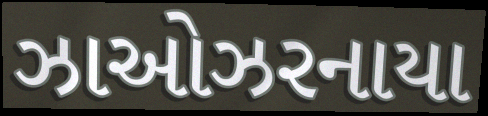
ઝાઓઝરનાયા